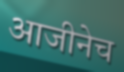
आजीनेच